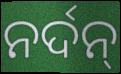
ନର୍ଦନ୍